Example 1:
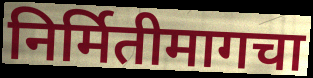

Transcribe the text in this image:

निर्मितीमागचा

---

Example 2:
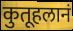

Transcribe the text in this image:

कुतूहलानं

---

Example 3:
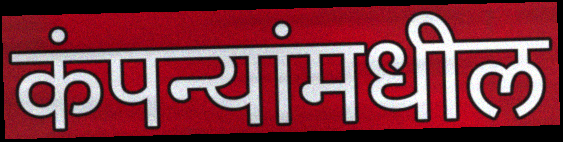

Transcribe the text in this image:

कंपन्यांमधील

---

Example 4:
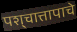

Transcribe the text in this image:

पश्चात्तापाचे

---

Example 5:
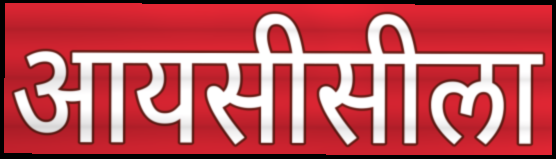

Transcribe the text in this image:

आयसीसीला